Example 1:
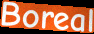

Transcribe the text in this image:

Boreal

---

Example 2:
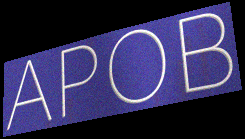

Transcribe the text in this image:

APOB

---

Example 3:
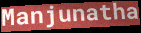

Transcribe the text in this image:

Manjunatha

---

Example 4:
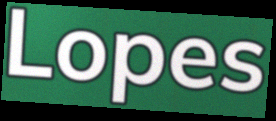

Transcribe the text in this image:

Lopes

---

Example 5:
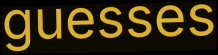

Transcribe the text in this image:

guesses